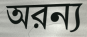
অরন্য